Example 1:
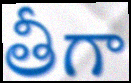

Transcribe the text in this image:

తీగా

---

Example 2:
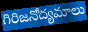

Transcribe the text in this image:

గిరిజనోద్యమాలు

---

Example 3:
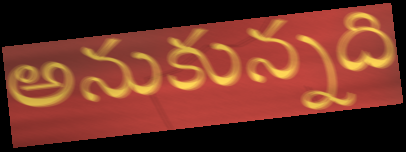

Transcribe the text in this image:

అనుకున్నది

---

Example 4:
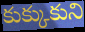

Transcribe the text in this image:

కుక్కుకుని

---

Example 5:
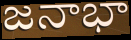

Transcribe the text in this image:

జనాభా